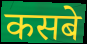
कसबे